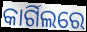
କାର୍ଗିଲରେ